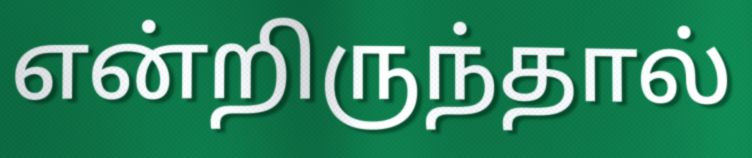
என்றிருந்தால்